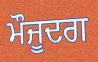
ਮੌਜੂਦਗ